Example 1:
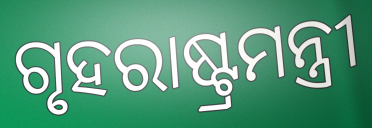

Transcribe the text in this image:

ଗୃହରାଷ୍ଟ୍ରମନ୍ତ୍ରୀ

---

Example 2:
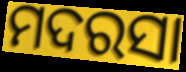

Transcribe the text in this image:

ମଦରସା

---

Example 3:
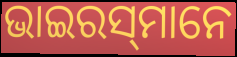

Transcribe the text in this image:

ଭାଇରସ୍‌ମାନେ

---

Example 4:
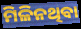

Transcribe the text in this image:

ମିଳିନଥିବା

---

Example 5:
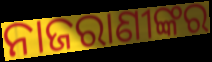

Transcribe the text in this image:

ନାଜରାଣୀଙ୍କର